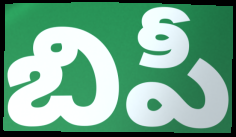
బిపీ